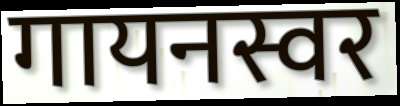
गायनस्वर